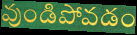
వుండిపోవడం